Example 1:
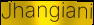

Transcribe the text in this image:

Jhangiani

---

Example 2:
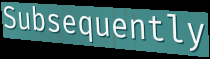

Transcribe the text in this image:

Subsequently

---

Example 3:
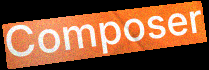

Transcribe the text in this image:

Composer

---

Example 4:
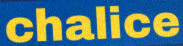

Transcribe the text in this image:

chalice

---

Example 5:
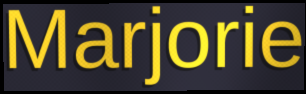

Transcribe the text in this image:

Marjorie